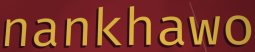
nankhawo